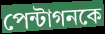
পেন্টাগনকে